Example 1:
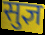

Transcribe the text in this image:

सुज्ञ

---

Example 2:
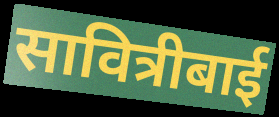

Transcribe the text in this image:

सावित्रीबाई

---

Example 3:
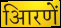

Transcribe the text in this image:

आिरणें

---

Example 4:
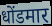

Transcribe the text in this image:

धोंडमार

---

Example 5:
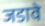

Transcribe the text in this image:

जडावे